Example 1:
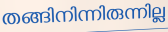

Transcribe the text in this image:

തങ്ങിനിന്നിരുന്നില്ല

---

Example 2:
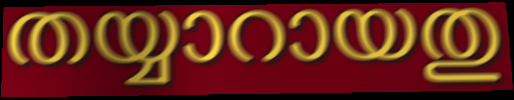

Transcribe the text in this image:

തയ്യാറായതു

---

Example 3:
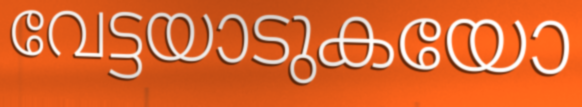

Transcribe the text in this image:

വേട്ടയാടുകയോ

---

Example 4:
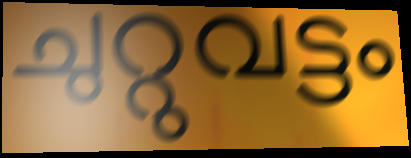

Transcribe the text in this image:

ചുറ്റുവട്ടം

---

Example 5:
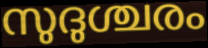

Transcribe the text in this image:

സുദുശ്ചരം